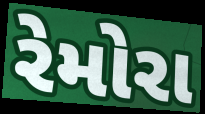
રેમોરા